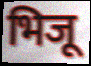
भिजू